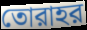
তোরাহর